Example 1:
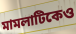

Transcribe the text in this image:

মামলাটিকেও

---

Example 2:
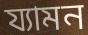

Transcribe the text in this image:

য্যামন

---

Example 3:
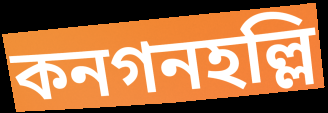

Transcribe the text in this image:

কনগনহল্লি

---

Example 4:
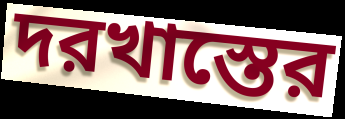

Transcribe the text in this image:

দরখাস্তের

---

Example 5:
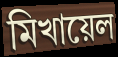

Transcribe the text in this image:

মিখায়েল